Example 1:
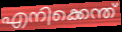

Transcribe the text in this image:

എനിക്കെന്ത്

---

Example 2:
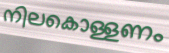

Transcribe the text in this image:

നിലകൊള്ളണം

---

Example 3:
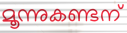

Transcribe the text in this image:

മൂന്നുകണ്ടന്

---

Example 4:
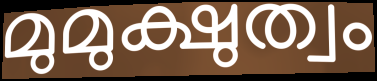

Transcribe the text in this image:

മുമുക്ഷുത്വം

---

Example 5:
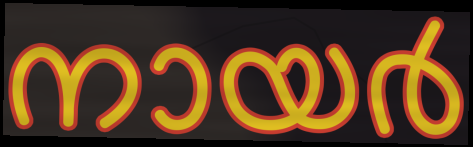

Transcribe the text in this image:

നായർ